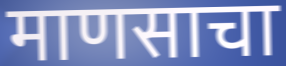
माणसाचा